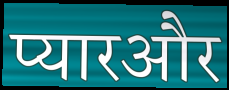
प्यारऔर